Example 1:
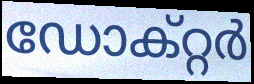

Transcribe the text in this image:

ഡോക്റ്റർ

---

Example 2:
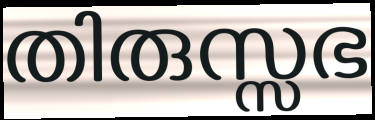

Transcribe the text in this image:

തിരുസ്സഭ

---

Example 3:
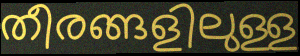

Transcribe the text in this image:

തീരങ്ങളിലുള്ള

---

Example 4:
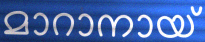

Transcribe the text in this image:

മാറാനായ്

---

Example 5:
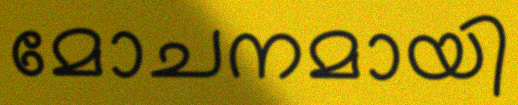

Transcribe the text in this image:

മോചനമായി